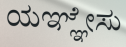
ಯಞ್ಞೇಸು